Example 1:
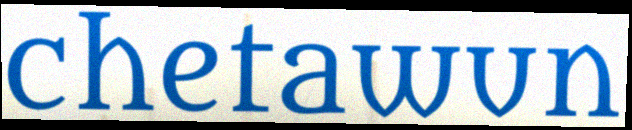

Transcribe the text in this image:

chetawun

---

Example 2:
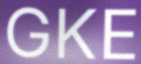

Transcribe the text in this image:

GKE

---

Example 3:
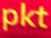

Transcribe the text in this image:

pkt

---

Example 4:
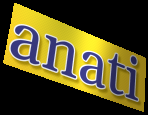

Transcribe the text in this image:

anati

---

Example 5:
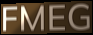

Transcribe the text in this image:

FMEG